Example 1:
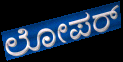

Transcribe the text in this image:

ಲೋಪರ್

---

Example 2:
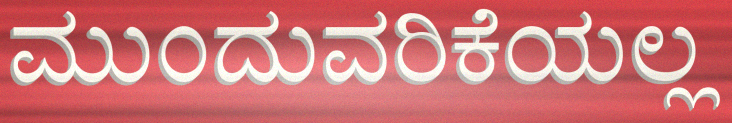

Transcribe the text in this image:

ಮುಂದುವರಿಕೆಯಲ್ಲ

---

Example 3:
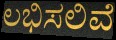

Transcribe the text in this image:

ಲಭಿಸಲಿವೆ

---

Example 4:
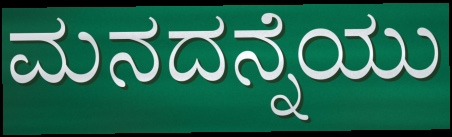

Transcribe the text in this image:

ಮನದನ್ನೆಯು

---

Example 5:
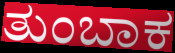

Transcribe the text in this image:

ತುಂಬಾಕ